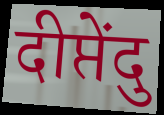
दीप्तेंदु